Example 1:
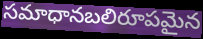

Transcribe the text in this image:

సమాధానబలిరూపమైన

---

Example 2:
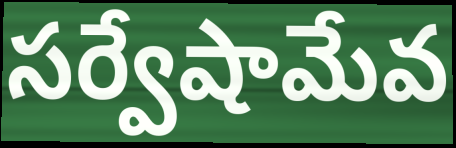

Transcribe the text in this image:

సర్వేషామేవ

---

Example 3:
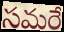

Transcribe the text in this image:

సమరే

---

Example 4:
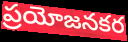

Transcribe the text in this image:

ప్రయోజనకర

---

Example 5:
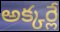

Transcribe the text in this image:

అక్కర్లే